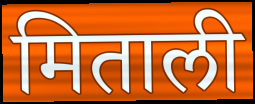
मिताली